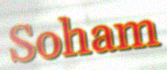
Soham